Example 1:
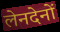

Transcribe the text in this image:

लेनदेनों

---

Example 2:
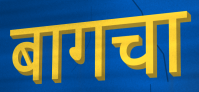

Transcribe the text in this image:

बागचा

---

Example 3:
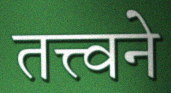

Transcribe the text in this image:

तत्त्वने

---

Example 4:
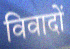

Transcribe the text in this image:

विवादों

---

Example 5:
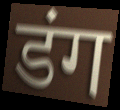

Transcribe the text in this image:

डंग